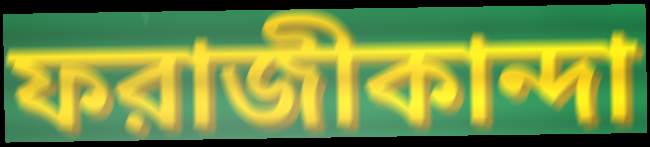
ফরাজীকান্দা